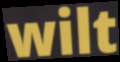
wilt